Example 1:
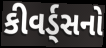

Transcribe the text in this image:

કીવર્ડ્સનો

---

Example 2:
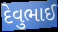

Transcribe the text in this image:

દેવુભાઈ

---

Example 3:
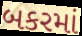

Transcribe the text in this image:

બકરમાં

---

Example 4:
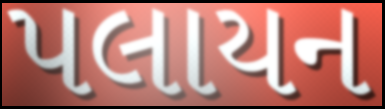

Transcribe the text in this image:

પલાયન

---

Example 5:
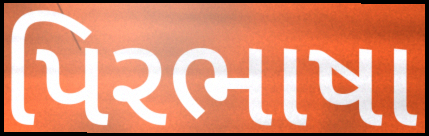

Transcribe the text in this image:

પિરભાષા